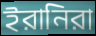
ইরানিরা